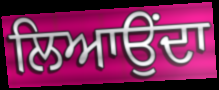
ਲਿਆਉਂਦਾ